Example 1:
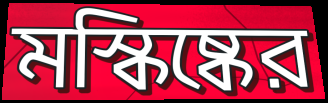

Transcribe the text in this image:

মস্কিষ্কের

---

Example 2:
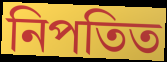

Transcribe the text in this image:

নিপতিত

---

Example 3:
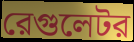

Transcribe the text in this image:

রেগুলেটর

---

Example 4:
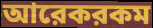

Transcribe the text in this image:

আরেকরকম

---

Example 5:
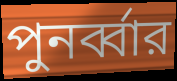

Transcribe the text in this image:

পুনর্ব্বার